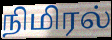
நிமிரல்